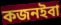
কজনইবা